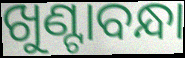
ଖୁଣ୍ଟାବନ୍ଧା